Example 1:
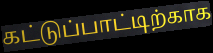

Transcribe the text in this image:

கட்டுப்பாட்டிற்காக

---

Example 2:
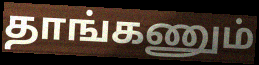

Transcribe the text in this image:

தாங்கணும்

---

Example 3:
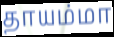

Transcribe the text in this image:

தாயம்மா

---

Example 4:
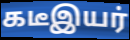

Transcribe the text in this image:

கடீஇயர்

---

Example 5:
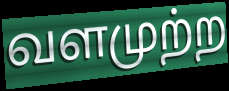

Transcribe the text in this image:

வளமுற்ற